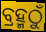
ବ୍ରହ୍ମଠୁଁ